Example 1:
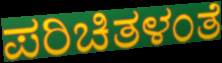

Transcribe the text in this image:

ಪರಿಚಿತಳಂತೆ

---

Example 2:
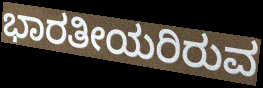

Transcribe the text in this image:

ಭಾರತೀಯರಿರುವ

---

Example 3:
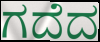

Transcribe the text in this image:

ಗದೆದ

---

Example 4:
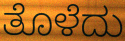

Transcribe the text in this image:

ತೊಳೆದು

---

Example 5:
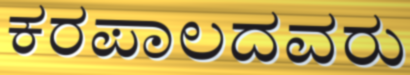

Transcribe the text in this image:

ಕರಪಾಲದವರು